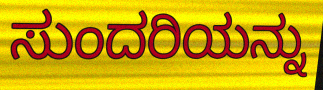
ಸುಂದರಿಯನ್ನು